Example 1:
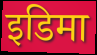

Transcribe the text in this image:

इडिमा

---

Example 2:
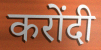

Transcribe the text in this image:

करोंदी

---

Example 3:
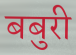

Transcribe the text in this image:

बबुरी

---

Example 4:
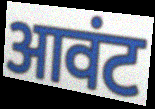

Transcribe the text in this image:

आवंट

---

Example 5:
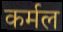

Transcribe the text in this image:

कर्मल